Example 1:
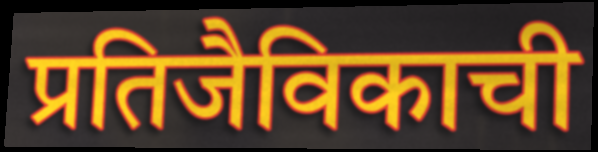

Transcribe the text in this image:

प्रतिजैविकाची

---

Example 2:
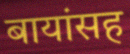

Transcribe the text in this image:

बायांसह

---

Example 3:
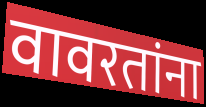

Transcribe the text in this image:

वावरतांना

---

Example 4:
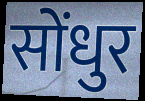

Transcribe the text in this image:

सोंधुर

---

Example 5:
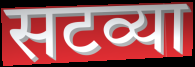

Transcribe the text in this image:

सटव्या